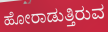
ಹೋರಾಡುತ್ತಿರುವ